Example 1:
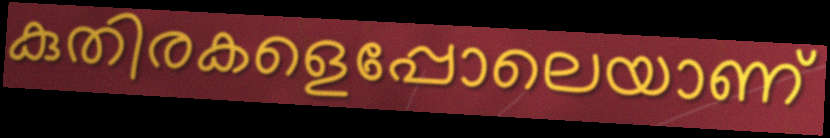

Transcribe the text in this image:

കുതിരകളെപ്പോലെയാണ്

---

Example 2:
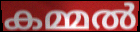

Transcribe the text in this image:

കമ്മൽ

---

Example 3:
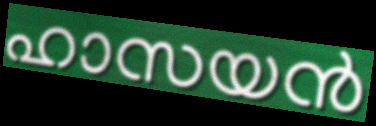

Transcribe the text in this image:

ഹാസയൻ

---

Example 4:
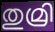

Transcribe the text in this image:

തുമ്രി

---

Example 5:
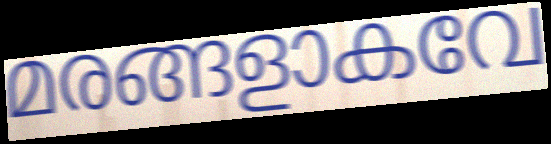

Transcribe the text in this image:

മരങ്ങളാകവേ